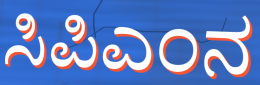
ಸಿಪಿಎಂನ